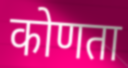
कोणता